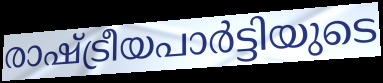
രാഷ്ട്രീയപാർട്ടിയുടെ